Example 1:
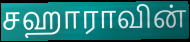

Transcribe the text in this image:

சஹாராவின்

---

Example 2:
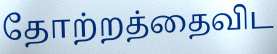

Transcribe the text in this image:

தோற்றத்தைவிட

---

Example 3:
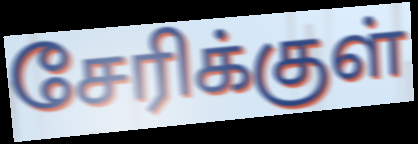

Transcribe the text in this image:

சேரிக்குள்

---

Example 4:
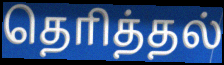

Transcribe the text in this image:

தெரித்தல்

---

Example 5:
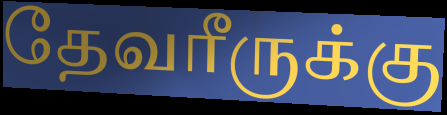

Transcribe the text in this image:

தேவரீருக்கு